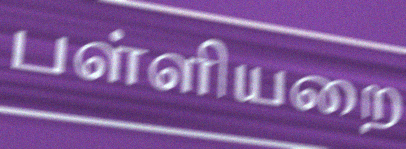
பள்ளியறை